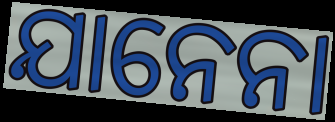
ଯାନେନା